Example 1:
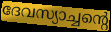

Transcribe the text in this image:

ദേവസ്യാച്ചന്റെ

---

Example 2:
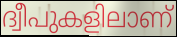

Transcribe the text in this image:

ദ്വീപുകളിലാണ്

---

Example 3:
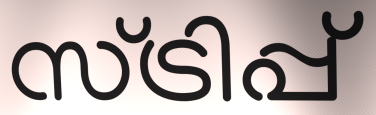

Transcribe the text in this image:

സ്ട്രിപ്പ്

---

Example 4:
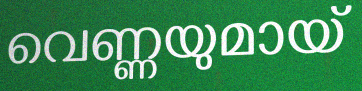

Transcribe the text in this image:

വെണ്ണയുമായ്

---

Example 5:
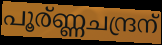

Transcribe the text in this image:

പൂര്ണ്ണചന്ദ്രന്